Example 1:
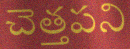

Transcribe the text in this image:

చెత్తపని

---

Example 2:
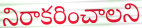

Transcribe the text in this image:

నిరాకరించాలని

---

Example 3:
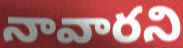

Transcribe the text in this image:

నావారని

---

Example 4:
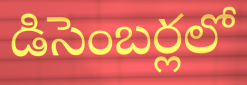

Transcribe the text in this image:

డిసెంబర్లలో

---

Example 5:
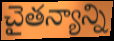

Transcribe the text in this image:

చైతన్యాన్ని